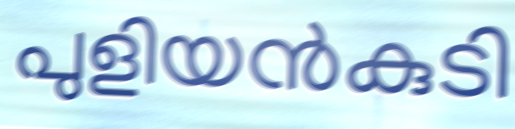
പുളിയൻകുടി